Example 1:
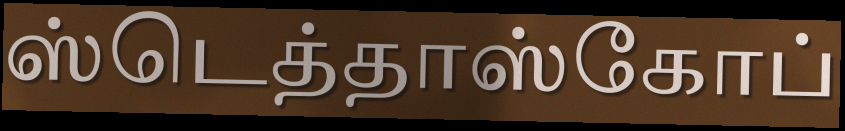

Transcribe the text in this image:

ஸ்டெத்தாஸ்கோப்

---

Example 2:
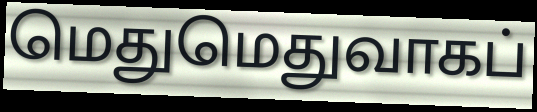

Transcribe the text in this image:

மெதுமெதுவாகப்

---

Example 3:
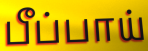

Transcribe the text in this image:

பீப்பாய்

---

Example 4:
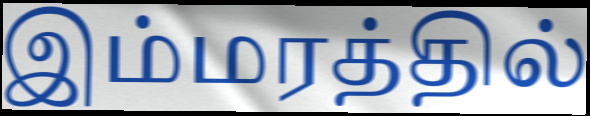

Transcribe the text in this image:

இம்மரத்தில்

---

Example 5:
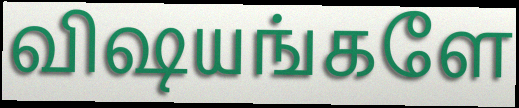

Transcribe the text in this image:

விஷயங்களே